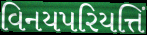
વિનયપરિયત્તિં